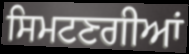
ਸਿਮਟਣਗੀਆਂ